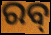
ରବ୍